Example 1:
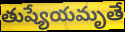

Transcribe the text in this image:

తుష్యేయమృతే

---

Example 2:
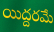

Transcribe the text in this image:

యిద్దరమే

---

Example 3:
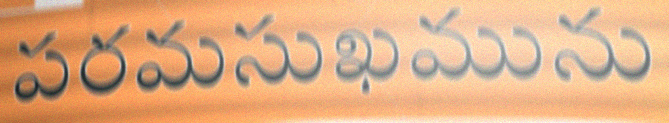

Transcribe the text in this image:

పరమసుఖమును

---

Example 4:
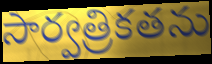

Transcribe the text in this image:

సార్వత్రికతను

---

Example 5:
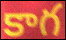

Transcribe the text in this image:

కాగ